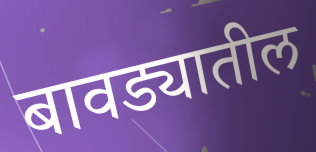
बावड्यातील